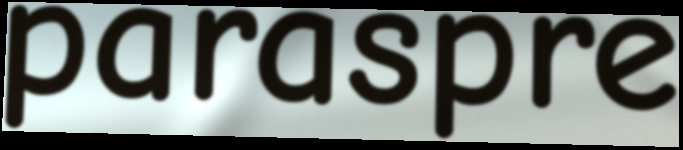
paraspre